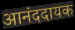
आनंददायक